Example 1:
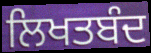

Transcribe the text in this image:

ਲਿਖਤਬੰਦ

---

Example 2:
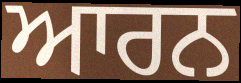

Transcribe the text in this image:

ਆਰਨ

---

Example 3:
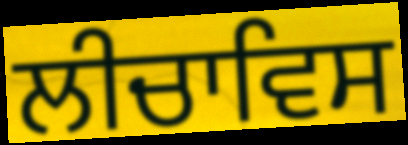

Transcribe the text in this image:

ਲੀਚਾਵਿਸ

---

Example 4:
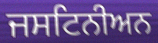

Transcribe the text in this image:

ਜਸਟਿਨੀਅਨ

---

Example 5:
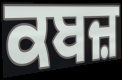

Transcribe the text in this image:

ਕਬਜ਼